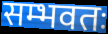
सम्भवतः